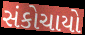
સંકોચાયો